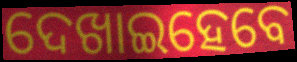
ଦେଖାଇହେବେ